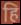
हि